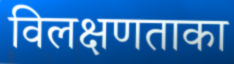
विलक्षणताका